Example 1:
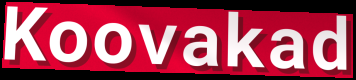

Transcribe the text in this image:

Koovakad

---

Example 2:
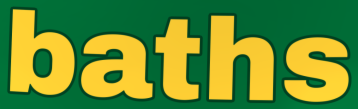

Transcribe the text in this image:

baths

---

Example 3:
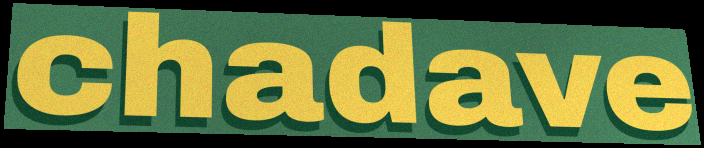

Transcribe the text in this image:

chadave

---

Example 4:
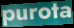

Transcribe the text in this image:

purota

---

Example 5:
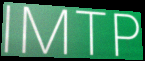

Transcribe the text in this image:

IMTP